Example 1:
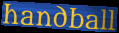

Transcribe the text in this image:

handball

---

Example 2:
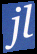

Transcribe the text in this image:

jl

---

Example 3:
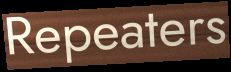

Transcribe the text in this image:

Repeaters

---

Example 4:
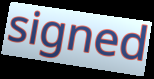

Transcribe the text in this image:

signed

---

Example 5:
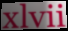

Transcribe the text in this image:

xlvii